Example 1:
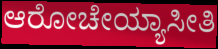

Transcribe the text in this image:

ಆರೋಚೇಯ್ಯಾಸೀತಿ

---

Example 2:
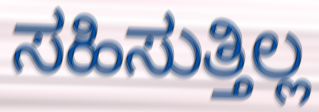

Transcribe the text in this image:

ಸಹಿಸುತ್ತಿಲ್ಲ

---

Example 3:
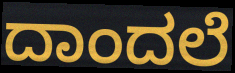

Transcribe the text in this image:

ದಾಂದಲೆ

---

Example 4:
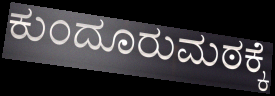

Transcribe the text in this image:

ಕುಂದೂರುಮಠಕ್ಕೆ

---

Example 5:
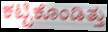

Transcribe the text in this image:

ಕಟ್ಟಿಕೊಂಡಿತ್ತು